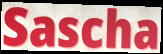
Sascha